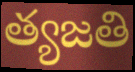
త్యజతి